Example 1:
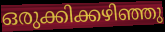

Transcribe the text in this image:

ഒരുക്കിക്കഴിഞ്ഞു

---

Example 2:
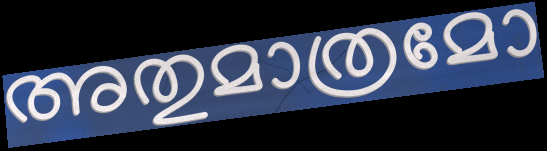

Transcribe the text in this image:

അതുമാത്രമോ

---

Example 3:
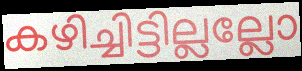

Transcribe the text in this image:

കഴിച്ചിട്ടില്ലല്ലോ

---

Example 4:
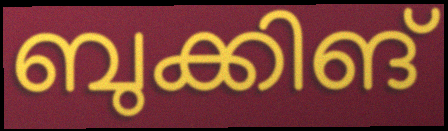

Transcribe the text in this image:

ബുക്കിങ്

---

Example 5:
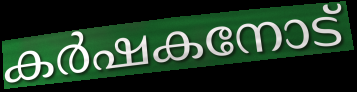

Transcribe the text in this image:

കർഷകനോട്